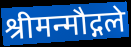
श्रीमन्मौद्गले